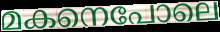
മകനെപോലെ